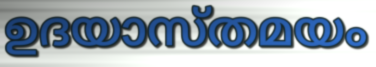
ഉദയാസ്തമയം